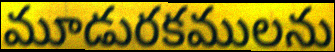
మూడురకములను